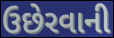
ઉછેરવાની